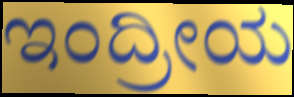
ಇಂದ್ರೀಯ